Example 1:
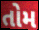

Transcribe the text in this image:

તોમ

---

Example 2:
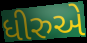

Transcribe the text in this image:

ધીરુએ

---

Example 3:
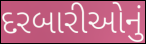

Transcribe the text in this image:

દરબારીઓનું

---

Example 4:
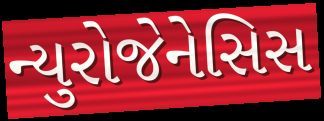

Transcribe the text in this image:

ન્યુરોજેનેસિસ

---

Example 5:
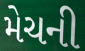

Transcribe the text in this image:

મેચની